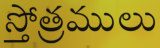
స్తోత్రములు